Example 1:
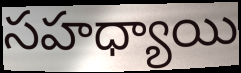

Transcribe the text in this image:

సహధ్యాయి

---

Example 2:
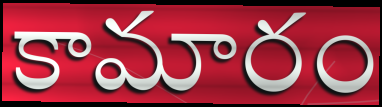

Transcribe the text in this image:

కామారం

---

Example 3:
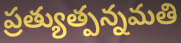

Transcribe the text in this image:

ప్రత్యుత్పన్నమతి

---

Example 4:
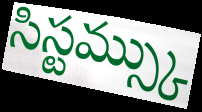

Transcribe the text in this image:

సిస్టమ్స్కు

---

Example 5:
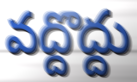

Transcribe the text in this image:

వద్దొద్దు